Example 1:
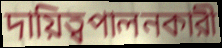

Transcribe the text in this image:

দায়িত্বপালনকারী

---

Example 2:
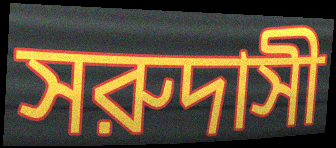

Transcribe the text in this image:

সরুদাসী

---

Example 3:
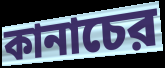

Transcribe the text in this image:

কানাচের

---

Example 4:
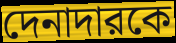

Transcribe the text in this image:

দেনাদারকে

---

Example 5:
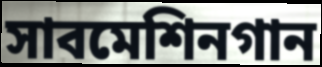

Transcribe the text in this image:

সাবমেশিনগান